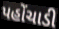
પહોંચાડી